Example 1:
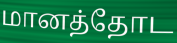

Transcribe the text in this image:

மானத்தோட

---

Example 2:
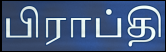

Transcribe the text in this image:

பிராப்தி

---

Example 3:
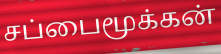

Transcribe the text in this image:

சப்பைமூக்கன்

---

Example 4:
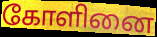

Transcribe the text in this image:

கோளினை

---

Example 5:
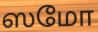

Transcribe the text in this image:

ஸமோ